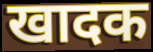
खादक